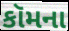
કૉમના